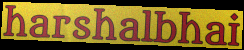
harshalbhai